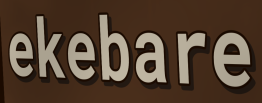
ekebare